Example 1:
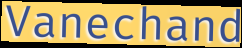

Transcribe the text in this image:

Vanechand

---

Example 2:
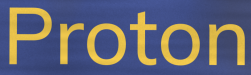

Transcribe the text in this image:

Proton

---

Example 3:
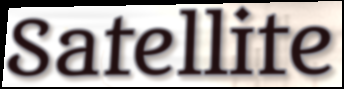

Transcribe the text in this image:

Satellite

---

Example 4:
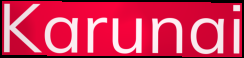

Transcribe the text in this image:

Karunai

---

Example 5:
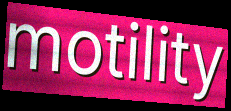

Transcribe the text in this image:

motility